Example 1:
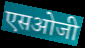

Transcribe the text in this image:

एसओजी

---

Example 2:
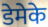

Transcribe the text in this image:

डेमेके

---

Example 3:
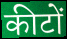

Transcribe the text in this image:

कीटों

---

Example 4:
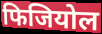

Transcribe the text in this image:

फिजियोल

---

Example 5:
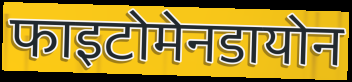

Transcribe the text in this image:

फाइटोमेनडायोन